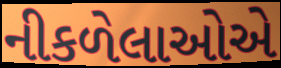
નીકળેલાઓએ